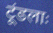
टूंडलाः